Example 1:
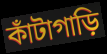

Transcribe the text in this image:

কাঁটাগাড়ি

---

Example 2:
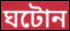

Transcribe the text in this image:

ঘটোন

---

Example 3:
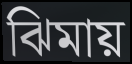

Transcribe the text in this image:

ঝিমায়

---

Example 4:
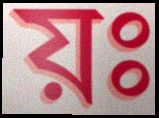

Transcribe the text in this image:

য়ঃ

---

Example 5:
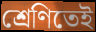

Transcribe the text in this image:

শ্রেণিতেই